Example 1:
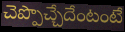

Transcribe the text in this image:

చెప్పొచ్చేదేంటంటే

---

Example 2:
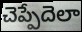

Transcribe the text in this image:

చెప్పేదెలా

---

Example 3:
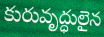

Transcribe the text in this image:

కురువృద్ధులైన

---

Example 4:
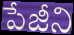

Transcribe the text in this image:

పేజీని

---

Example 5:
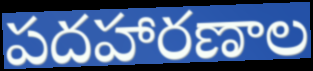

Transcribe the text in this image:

పదహారణాల